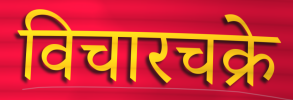
विचारचक्रे